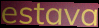
estava